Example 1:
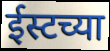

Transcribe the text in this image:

ईस्टच्या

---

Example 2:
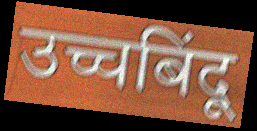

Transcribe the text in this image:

उच्चबिंदू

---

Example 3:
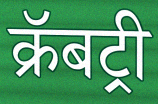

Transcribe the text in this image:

क्रॅबट्री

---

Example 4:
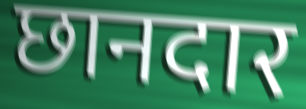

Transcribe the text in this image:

छानदार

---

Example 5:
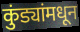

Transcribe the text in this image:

कुंड्यांमधून